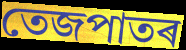
তেজপাতৰ